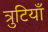
त्रुटियाँ